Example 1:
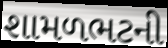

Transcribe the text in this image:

શામળભટની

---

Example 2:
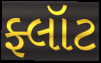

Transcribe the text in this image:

ફ્લૉટ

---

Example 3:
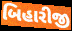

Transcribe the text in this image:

બિહારીજી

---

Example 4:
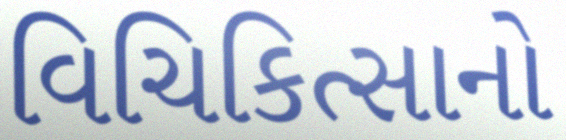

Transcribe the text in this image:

વિચિકિત્સાનો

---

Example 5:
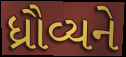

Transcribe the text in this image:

ધ્રૌવ્યને